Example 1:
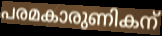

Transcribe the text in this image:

പരമകാരുണികന്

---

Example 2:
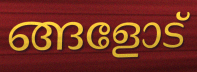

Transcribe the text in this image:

ങ്ങളോട്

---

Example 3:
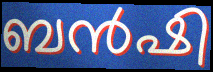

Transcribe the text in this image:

ബൻഷി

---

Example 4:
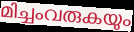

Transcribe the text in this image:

മിച്ചംവരുകയും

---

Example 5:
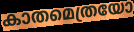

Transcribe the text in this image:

കാതമെത്രയോ